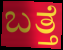
ಬತ್ತೆ